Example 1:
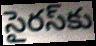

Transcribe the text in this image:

సైరస్‌కు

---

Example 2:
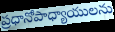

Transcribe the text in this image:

ప్రధానోపాధ్యాయులను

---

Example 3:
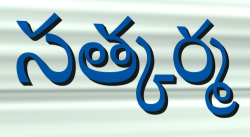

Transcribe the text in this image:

సత్కర్మ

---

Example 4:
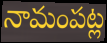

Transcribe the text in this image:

నామంపట్ల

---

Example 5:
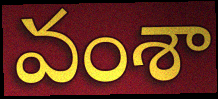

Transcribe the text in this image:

వంశా